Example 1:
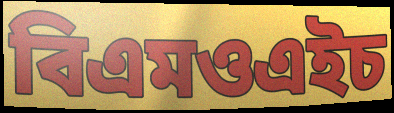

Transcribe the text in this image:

বিএমওএইচ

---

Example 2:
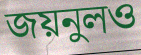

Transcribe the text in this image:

জয়নুলও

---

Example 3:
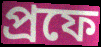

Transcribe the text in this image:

প্রফে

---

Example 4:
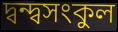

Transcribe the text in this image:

দ্বন্দ্বসংকুল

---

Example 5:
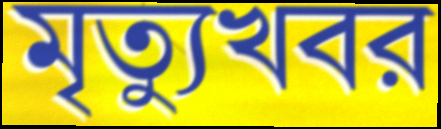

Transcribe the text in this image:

মৃত্যুখবর